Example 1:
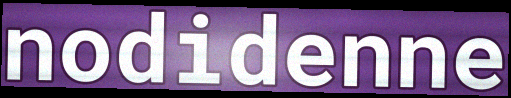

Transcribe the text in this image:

nodidenne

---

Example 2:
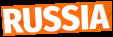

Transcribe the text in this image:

RUSSIA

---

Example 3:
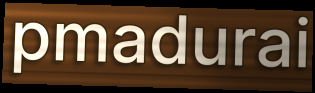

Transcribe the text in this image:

pmadurai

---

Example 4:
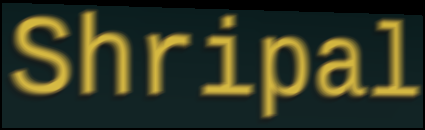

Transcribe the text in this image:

Shripal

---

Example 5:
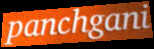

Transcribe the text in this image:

panchgani